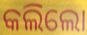
କଲିଲୋ